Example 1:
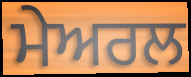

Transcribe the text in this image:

ਮੇਅਰਲ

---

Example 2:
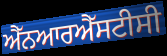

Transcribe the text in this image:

ਐੱਨਆਰਐੱਸਟੀਸੀ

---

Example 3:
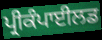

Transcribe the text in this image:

ਪ੍ਰੀਕੰਪਾਈਲਡ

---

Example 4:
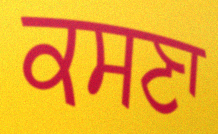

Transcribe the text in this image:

ਕਸਣਾ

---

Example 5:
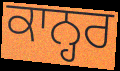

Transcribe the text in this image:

ਕਾਨ੍ਹਰ